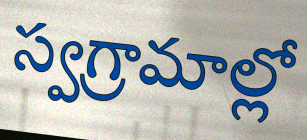
స్వగ్రామాల్లో